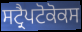
ਸਟ੍ਰੈਪਟੋਕੋਕਸ